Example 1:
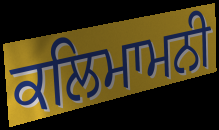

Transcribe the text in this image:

ਕਲਿਮਾਮਨੀ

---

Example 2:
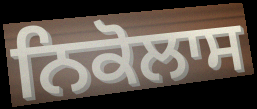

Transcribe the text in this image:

ਨਿਕੋਲਾਸ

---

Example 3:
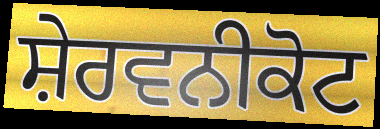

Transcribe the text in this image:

ਸ਼ੇਰਵਨੀਕੋਟ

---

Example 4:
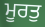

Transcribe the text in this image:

ਮੂਰਤੁ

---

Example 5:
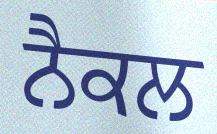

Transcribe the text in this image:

ਨੈਕਲ